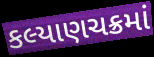
કલ્યાણચક્રમાં